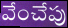
వేంచేపు